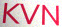
KVN